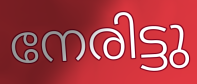
നേരിട്ടു